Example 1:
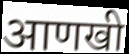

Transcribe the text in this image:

आणखी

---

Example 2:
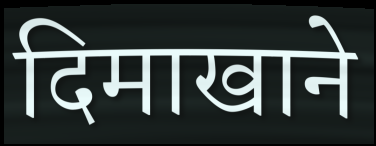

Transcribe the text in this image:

दिमाखाने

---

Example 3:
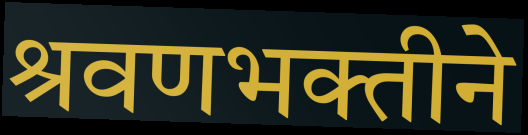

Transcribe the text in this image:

श्रवणभक्तीने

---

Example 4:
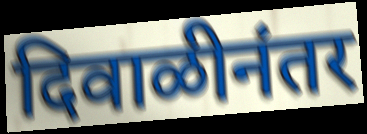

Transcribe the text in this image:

दिवाळीनंतर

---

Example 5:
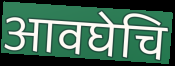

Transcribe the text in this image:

आवघेचि